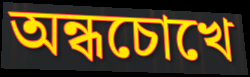
অন্ধচোখে